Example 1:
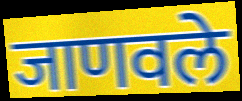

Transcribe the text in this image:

जाणवले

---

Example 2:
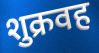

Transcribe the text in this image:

शुक्रवह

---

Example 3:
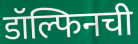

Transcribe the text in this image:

डॉल्फिनची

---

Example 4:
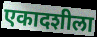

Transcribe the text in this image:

एकादशीला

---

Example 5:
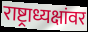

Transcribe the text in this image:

राष्ट्राध्यक्षांवर